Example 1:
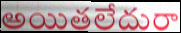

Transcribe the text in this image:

అయితలేదురా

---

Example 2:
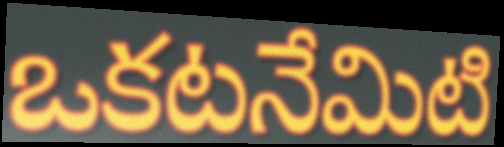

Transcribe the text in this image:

ఒకటనేమిటి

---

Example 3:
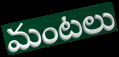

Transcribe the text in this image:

మంటలు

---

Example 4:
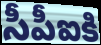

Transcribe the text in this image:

సీపీఐకి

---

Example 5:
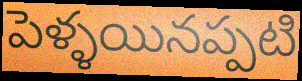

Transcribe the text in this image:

పెళ్ళయినప్పటి